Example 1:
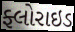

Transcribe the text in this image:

ફ્લોરાઇડ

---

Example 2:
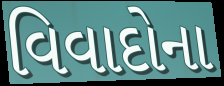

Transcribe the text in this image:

વિવાદોના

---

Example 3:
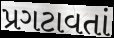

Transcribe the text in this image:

પ્રગટાવતાં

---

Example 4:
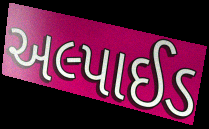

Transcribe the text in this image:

અલ્પાઈડ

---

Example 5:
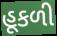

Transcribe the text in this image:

હૂકળી